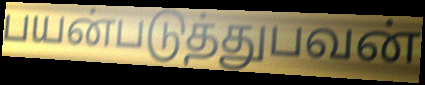
பயன்படுத்துபவன்